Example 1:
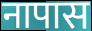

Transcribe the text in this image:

नापास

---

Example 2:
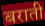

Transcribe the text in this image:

बराती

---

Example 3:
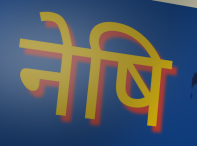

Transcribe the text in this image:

नेषि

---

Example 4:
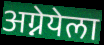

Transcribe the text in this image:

अग्नेयेला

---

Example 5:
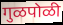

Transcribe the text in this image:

गुळपोळी